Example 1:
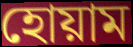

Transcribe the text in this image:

হোয়াম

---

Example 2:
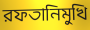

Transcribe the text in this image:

রফতানিমুখি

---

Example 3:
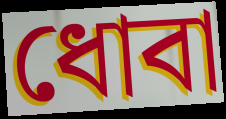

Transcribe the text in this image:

ধোবা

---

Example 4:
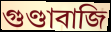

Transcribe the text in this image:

গুণ্ডাবাজি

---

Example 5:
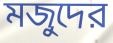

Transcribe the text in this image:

মজুদের